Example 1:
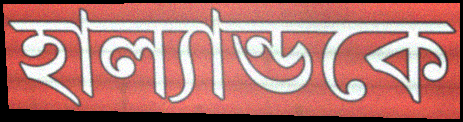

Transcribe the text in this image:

হাল্যান্ডকে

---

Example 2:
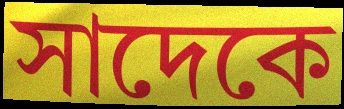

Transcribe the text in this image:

সাদেকে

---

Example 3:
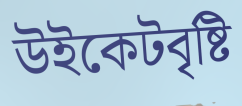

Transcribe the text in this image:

উইকেটবৃষ্টি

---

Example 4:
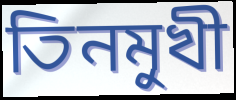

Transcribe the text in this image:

তিনমুখী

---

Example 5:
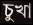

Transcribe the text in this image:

চুখা